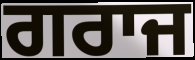
ਗਰਾਜ